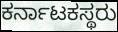
ಕರ್ನಾಟಕಸ್ಥರು